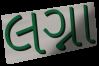
લગ્ના